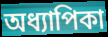
অধ্যাপিকা